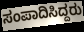
ಸಂಪಾದಿಸಿದ್ದರು